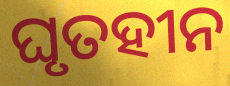
ଘୃତହୀନ